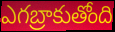
ఎగబ్రాకుతోంది